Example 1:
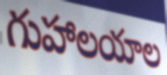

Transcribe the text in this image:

గుహాలయాల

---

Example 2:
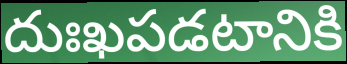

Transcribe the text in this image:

దుఃఖపడటానికి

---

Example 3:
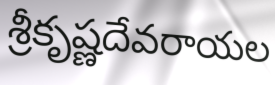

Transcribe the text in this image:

శ్రీకృష్ణదేవరాయల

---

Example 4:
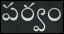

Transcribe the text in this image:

పర్వం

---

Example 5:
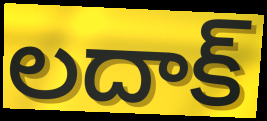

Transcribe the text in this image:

లదాక్